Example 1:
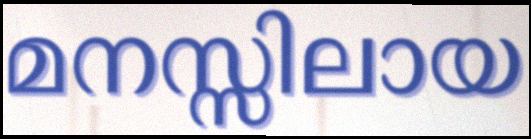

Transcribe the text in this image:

മനസ്സിലായ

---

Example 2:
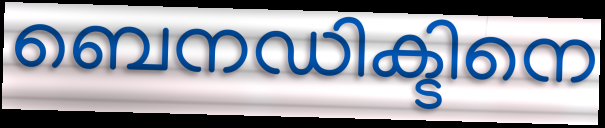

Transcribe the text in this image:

ബെനഡിക്ടിനെ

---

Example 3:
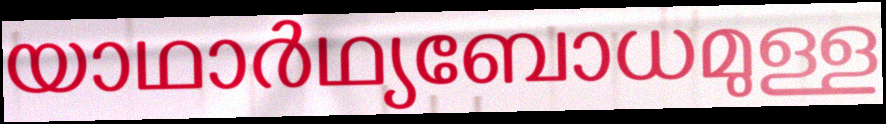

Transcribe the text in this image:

യാഥാർഥ്യബോധമുള്ള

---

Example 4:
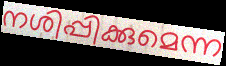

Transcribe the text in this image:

നശിപ്പിക്കുമെന്ന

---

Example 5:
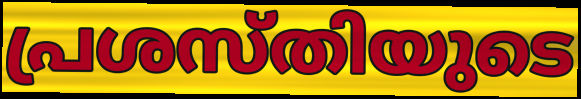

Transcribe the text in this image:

പ്രശസ്തിയുടെ